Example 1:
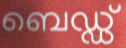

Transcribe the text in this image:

ബെഡ്ഡ്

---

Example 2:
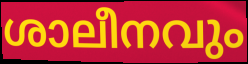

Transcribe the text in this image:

ശാലീനവും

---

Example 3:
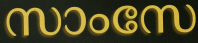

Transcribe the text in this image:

സാംസേ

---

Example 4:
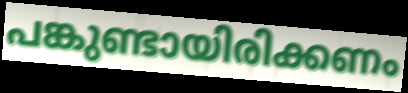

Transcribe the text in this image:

പങ്കുണ്ടായിരിക്കണം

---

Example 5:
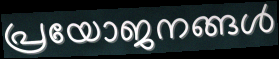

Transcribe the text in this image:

പ്രയോജനങ്ങൾ